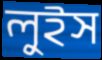
লুইস